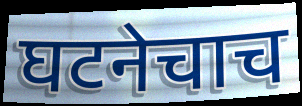
घटनेचाच